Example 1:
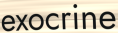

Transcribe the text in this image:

exocrine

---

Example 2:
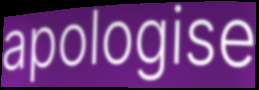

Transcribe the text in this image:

apologise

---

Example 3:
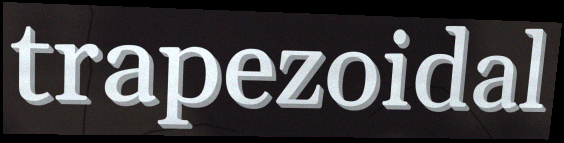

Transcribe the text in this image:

trapezoidal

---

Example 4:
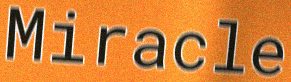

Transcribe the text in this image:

Miracle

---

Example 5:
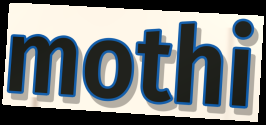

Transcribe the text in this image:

mothi